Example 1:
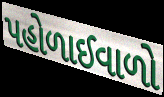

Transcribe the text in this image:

પહોળાઈવાળો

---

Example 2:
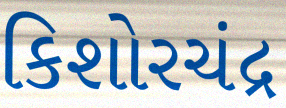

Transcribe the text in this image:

કિશોરચંદ્ર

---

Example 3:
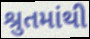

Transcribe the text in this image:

શ્રુતમાંથી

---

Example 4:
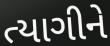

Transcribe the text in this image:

ત્યાગીને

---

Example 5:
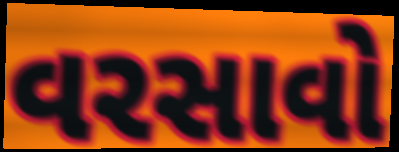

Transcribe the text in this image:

વરસાવો